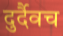
दुर्दैवच